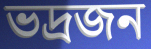
ভদ্রজন